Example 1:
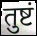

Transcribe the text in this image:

तुष्टं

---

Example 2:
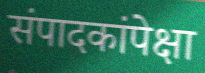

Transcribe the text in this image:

संपादकांपेक्षा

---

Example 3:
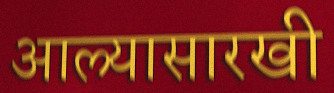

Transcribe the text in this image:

आल्यासारखी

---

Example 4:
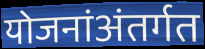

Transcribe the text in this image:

योजनांअंतर्गत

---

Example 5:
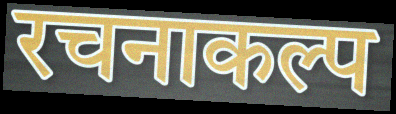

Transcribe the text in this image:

रचनाकल्प